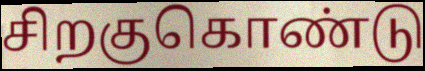
சிறகுகொண்டு